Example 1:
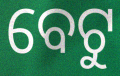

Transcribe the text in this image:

ବେଟୁ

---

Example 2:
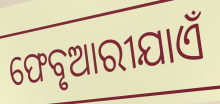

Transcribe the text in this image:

ଫେବୃଆରୀଯାଏଁ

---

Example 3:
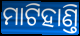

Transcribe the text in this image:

ମାଟିହାଣ୍ତି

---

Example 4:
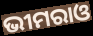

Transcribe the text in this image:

ଭୀମରାଓ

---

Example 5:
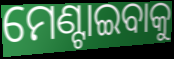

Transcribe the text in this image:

ମେଣ୍ଟାଇବାକୁ